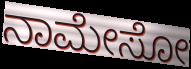
ನಾಮೇಸೋ